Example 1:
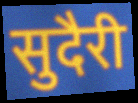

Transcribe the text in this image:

सुदैरी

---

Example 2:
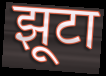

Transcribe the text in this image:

झूटा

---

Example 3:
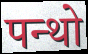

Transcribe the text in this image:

पन्थो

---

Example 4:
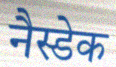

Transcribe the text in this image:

नैस्डेक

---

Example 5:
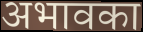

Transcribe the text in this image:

अभावका